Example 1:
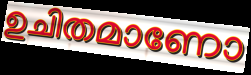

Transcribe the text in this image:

ഉചിതമാണോ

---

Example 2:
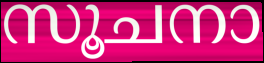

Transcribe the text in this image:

സൂചനാ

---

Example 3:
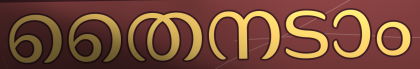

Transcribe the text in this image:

തൈനടാം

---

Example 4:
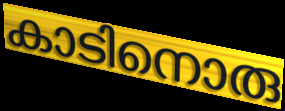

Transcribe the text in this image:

കാടിനൊരു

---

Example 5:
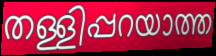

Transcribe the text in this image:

തള്ളിപ്പറയാത്ത